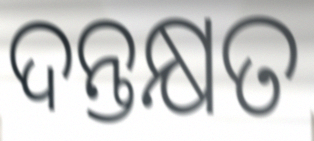
ଦନ୍ତକ୍ଷତ